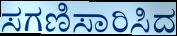
ಸಗಣಿಸಾರಿಸಿದ